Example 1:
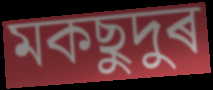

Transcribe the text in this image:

মকছুদুৰ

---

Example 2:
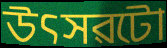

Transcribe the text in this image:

উৎসৱটো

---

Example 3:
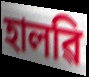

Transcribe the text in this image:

হালৱি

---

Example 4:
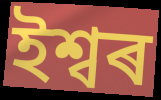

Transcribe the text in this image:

ইশ্বৰ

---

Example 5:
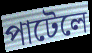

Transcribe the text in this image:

পাটেলে